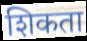
शिकता